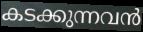
കടക്കുന്നവൻ